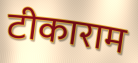
टीकाराम